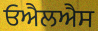
ਓਐਲਐਸ